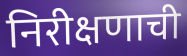
निरीक्षणाची